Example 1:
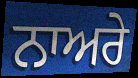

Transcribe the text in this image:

ਨਾਅਰੇ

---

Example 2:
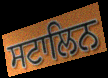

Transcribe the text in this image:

ਸਟਾਲਿਨ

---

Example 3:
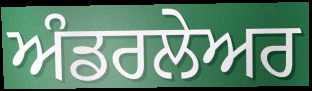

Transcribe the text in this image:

ਅੰਡਰਲੇਅਰ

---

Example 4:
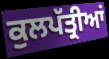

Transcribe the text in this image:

ਕੁਲਪੱਤ੍ਰੀਆਂ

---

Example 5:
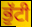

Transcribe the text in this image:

ਭੁੱਟੀ